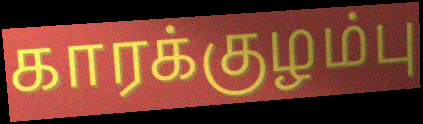
காரக்குழம்பு